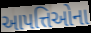
આપત્તિઓના